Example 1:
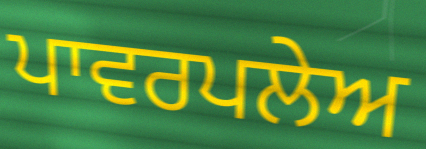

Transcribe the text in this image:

ਪਾਵਰਪਲੇਅ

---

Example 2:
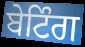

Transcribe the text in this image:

ਬੇਟਿੰਗ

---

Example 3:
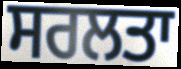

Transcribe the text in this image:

ਸਰਲਤਾ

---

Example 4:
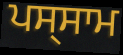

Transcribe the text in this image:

ਪਸ੍ਸਾਮ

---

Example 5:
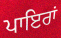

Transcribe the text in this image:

ਪਾਇਰਾਂ